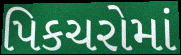
પિકચરોમાં